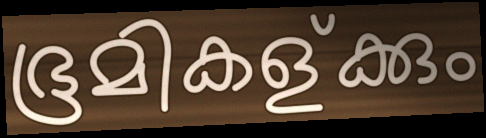
ഭൂമികള്ക്കും